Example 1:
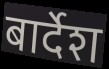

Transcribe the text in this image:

बार्देश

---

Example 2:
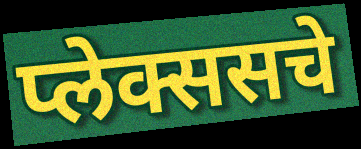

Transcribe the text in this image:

प्लेक्ससचे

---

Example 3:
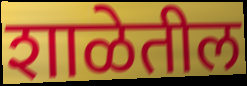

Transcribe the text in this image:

शाळेतील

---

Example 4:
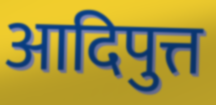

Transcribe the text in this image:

आदिपुत्त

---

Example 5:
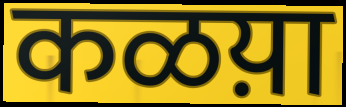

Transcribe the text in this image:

कळय़ा